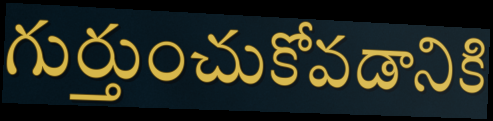
గుర్తుంచుకోవడానికి